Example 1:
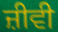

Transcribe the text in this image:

ਜ਼ੀਵੀ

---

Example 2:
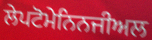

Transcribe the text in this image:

ਲੇਪਟੋਮੇਨਿਨਜੀਅਲ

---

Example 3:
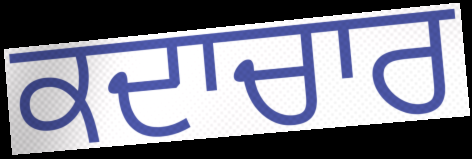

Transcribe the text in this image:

ਕਦਾਚਾਰ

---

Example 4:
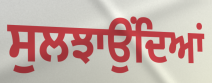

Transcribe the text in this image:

ਸੁਲਝਾਉਂਦਿਆਂ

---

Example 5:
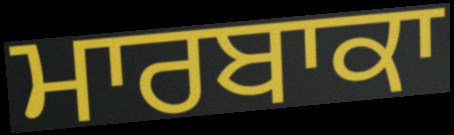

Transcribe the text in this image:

ਮਾਰਬਾਕਾ